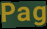
Pag